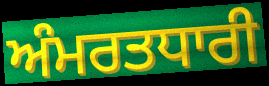
ਅੰਮਰਤਧਾਰੀ